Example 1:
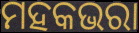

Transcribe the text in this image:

ମହକଭରା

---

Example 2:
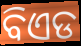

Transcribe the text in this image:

ବିଏଡ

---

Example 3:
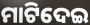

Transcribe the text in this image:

ମାଟିଦେଇ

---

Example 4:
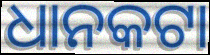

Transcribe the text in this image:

ଧାନକଟା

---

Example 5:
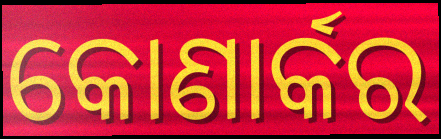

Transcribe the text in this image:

କୋଣାର୍କର